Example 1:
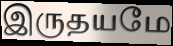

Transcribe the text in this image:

இருதயமே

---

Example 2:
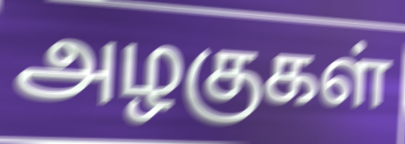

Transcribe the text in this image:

அழகுகள்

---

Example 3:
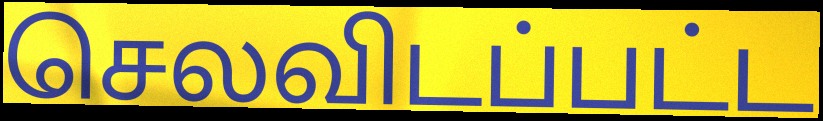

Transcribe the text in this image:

செலவிடப்பட்ட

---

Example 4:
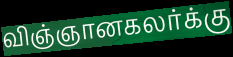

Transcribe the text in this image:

விஞ்ஞானகலர்க்கு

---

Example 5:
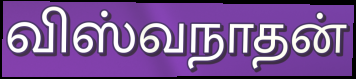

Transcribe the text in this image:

விஸ்வநாதன்